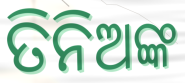
ତିନିଅଙ୍କ